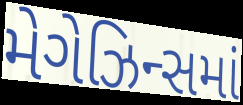
મેગેઝિન્સમાં